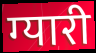
ग्यारी